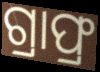
ଗ୍ରାଫ୍ର